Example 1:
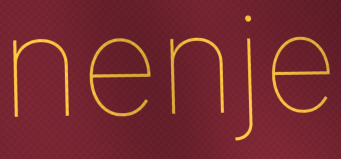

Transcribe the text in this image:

nenje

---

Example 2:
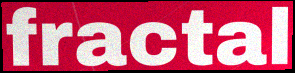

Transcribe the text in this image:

fractal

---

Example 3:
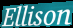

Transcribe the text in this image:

Ellison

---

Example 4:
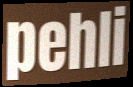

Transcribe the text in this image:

pehli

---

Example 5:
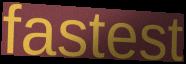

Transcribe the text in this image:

fastest